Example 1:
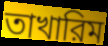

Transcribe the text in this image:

তাখারিম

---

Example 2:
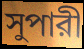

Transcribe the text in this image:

সুপারী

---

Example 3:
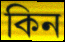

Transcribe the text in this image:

কিন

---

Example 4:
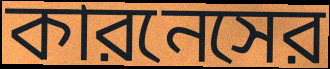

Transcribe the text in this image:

কারনেসের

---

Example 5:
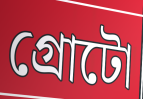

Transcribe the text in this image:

গ্রোটো